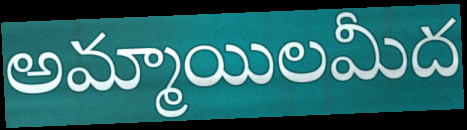
అమ్మాయిలమీద